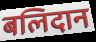
बलिदान